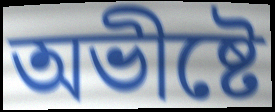
অভীষ্টে